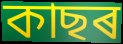
কাছৰ